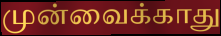
முன்வைக்காது